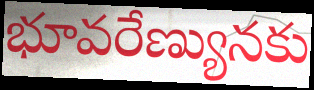
భూవరేణ్యునకు